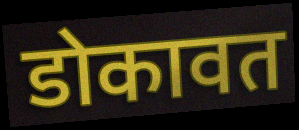
डोकावत